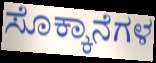
ಸೊಕ್ಕಾನೆಗಳ